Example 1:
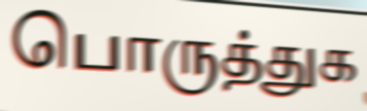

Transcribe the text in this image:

பொருத்துக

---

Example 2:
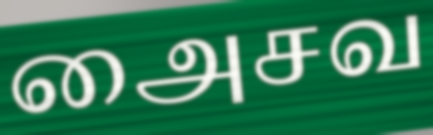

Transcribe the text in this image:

அைசவ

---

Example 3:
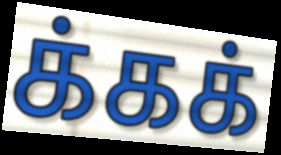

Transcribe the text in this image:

க்கக்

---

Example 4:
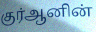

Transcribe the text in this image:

குர்ஆனின்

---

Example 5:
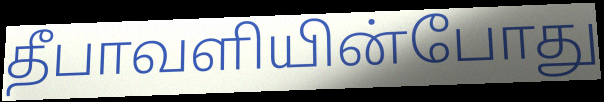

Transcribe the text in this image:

தீபாவளியின்போது